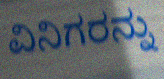
ವಿನಿಗರನ್ನು